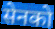
सेनको